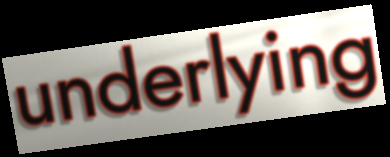
underlying